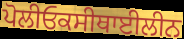
ਪੋਲੀਓਕਸੀਥਾਈਲੀਨ